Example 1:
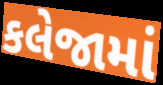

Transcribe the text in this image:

કલેજામાં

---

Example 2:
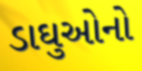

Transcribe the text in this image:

ડાઘુઓનો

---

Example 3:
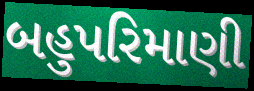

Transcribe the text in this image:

બહુપરિમાણી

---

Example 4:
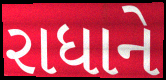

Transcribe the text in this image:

રાધાને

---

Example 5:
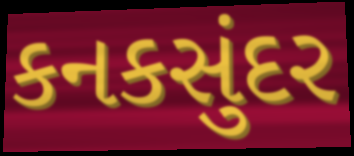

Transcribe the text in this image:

કનકસુંદર